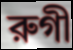
রুগী